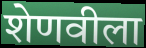
शेणवीला